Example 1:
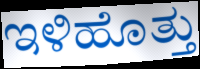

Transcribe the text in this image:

ಇಳಿಹೊತ್ತು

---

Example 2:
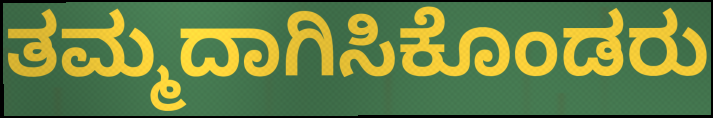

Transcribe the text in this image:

ತಮ್ಮದಾಗಿಸಿಕೊಂಡರು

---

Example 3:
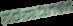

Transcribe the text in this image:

ನರನಾಡಿಗಳಿಗೆ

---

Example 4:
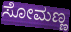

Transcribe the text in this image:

ಸೋಮಣ್ಣ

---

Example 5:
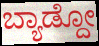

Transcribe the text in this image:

ಬ್ಯಾಡ್ದೋ